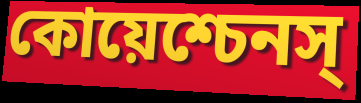
কোয়েশ্চেনস্